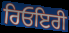
ਰਿਓਇਰੀ